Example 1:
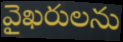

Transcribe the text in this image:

వైఖరులను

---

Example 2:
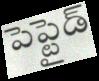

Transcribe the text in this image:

పెప్టైడ్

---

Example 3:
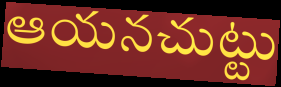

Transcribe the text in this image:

ఆయనచుట్టు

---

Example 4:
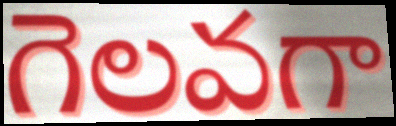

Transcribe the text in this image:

గెలవగా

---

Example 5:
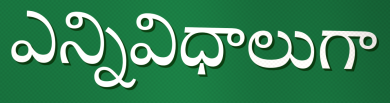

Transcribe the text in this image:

ఎన్నివిధాలుగా